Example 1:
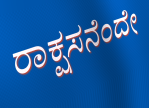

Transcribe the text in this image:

ರಾಕ್ಷಸನೆಂದೇ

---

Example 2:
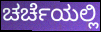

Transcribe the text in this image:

ಚರ್ಚೆಯಲ್ಲಿ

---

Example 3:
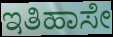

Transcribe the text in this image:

ಇತಿಹಾಸೇ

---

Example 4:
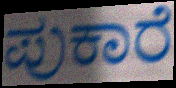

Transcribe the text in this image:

ಪುಕಾರೆ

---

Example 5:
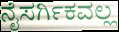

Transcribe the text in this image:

ನೈಸರ್ಗಿಕವಲ್ಲ